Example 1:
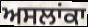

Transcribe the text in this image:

ਅਸਲਾਂਕਾ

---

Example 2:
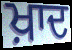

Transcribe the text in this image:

ਖ਼ਾਦ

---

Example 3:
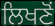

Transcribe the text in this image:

ਲਿਖਣੋਂ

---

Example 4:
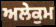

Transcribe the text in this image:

ਅਲੇਕੁਮ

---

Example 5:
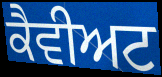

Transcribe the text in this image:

ਕੈਵੀਅਟ